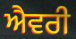
ਐਵਰੀ